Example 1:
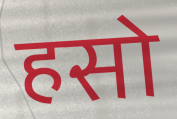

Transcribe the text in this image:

हसो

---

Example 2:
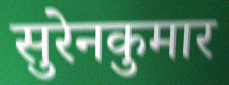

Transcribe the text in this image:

सुरेनकुमार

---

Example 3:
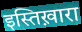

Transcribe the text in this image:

इस्तिख़ारा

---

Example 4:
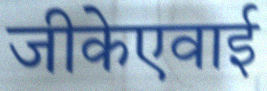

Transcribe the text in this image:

जीकेएवाई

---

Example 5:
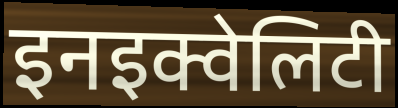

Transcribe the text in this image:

इनइक्वेलिटी